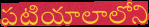
పటియాలాలోని